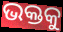
ଭକ୍ତକୁ